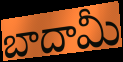
బాదామీ